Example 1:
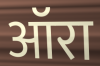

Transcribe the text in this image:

ऑरा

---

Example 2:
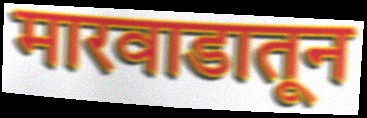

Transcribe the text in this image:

मारवाडातून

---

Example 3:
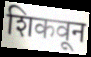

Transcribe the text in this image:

शिकवून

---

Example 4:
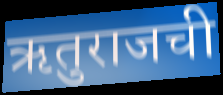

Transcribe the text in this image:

ऋतुराजची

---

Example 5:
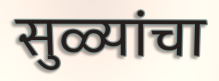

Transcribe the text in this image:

सुळ्यांचा